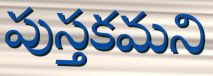
పుస్తకమని